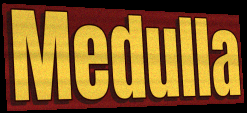
Medulla